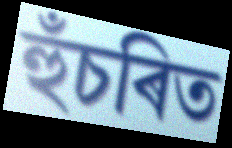
হুঁচৰিত